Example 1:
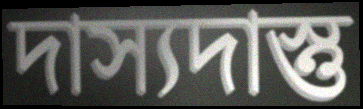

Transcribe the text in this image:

দাস্যদাস্তু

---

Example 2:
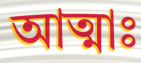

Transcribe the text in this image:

আত্মাঃ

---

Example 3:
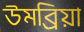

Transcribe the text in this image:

উমব্রিয়া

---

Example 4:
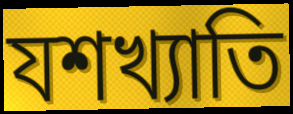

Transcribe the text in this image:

যশখ্যাতি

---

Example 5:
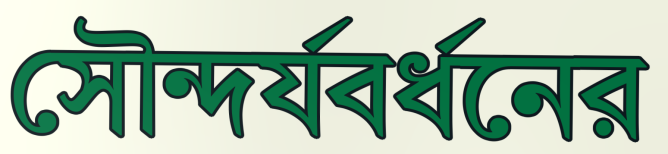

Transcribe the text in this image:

সৌন্দর্যবর্ধনের